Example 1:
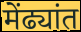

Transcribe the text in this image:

मेंढ्यांत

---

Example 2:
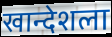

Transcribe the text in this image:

खान्देशला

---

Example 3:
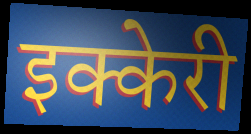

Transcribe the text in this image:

इक्केरी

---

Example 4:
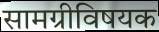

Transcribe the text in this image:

सामग्रीविषयक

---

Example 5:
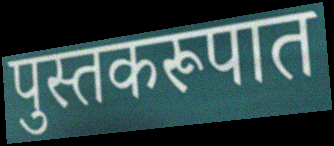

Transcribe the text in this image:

पुस्तकरूपात